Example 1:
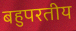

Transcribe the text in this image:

बहुपरतीय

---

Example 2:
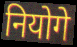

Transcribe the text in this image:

नियोगे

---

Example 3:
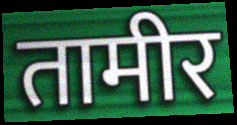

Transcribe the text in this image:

तामीर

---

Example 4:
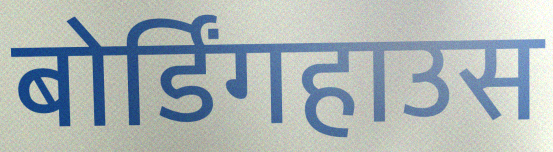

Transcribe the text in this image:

बोर्डिंगहाउस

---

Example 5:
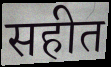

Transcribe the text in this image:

सहीत